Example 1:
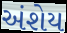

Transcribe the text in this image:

અંશેય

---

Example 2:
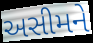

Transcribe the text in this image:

અસીમને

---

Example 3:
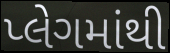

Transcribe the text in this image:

પ્લેગમાંથી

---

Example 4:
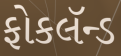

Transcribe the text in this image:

ફોકલૅન્ડ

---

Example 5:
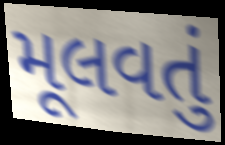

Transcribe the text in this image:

મૂલવતું